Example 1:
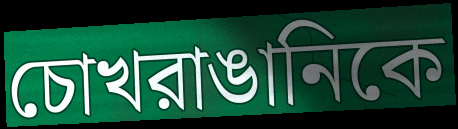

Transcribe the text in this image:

চোখরাঙানিকে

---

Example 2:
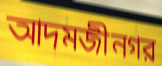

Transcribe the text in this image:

আদমজীনগর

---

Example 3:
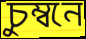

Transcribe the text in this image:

চুম্বনে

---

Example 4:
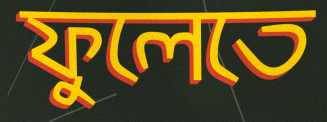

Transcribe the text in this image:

ফুলেতে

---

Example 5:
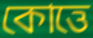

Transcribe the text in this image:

কোত্তে